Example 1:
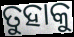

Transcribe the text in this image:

ତୁହାକୁ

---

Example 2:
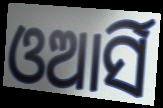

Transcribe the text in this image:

ଓଆର୍ସି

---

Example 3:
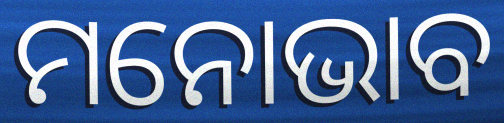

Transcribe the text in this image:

ମନୋଭାବ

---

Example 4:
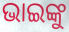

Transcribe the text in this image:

ଭାଇଙ୍କୁ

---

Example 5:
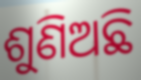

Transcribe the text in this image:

ଶୁଣିଅଛି